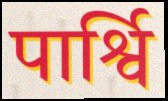
पार्श्वि